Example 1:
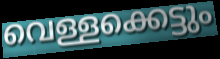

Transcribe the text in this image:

വെള്ളക്കെട്ടും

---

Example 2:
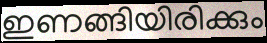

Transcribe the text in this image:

ഇണങ്ങിയിരിക്കും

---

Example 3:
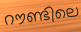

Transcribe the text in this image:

റൗണ്ടിലെ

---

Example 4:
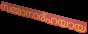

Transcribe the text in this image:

സമ്മാനാര്ഹയായ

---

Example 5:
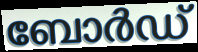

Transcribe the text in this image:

ബോർഡ്